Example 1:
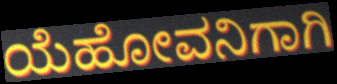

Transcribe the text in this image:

ಯೆಹೋವನಿಗಾಗಿ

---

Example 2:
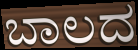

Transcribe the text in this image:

ಬಾಲದ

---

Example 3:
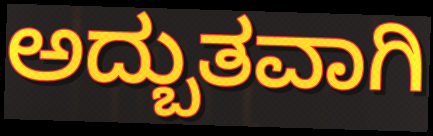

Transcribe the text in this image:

ಅದ್ಬುತವಾಗಿ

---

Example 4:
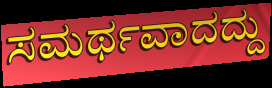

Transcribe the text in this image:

ಸಮರ್ಥವಾದದ್ದು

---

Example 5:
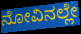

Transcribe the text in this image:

ನೋವಿನಲ್ಲೇ